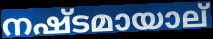
നഷ്ടമായാല്